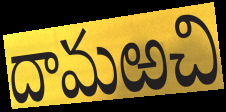
దామఱచి